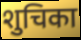
शुचिका